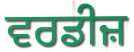
ਵਰਡੀਜ਼